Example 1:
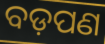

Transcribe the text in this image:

ବଡ଼ପଣ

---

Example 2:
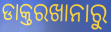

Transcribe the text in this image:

ଡାକ୍ତରଖାନାରୁ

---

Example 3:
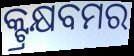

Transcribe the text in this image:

କ୍ଟ୍ରକ୍ଷବମର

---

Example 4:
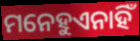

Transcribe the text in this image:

ମନେହୁଏନାହିଁ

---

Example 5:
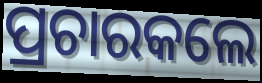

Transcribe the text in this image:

ପ୍ରଚାରକଲେ